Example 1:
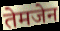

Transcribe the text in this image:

तेमजेन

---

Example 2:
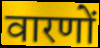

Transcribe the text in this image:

वारणों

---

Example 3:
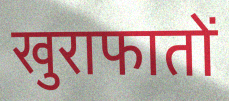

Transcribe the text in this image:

खुराफातों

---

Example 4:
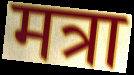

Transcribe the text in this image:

मत्रा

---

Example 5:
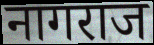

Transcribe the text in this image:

नागराज